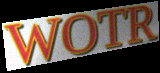
WOTR